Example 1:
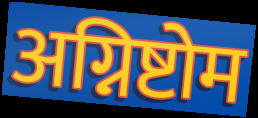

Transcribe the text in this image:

अग्निष्टोम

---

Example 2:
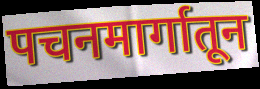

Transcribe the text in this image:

पचनमार्गातून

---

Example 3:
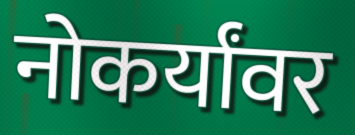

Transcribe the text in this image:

नोकर्यांवर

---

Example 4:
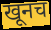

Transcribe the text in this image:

खूनच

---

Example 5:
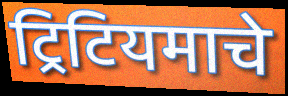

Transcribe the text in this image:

ट्रिटियमाचे